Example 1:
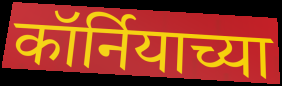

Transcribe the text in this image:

कॉर्नियाच्या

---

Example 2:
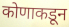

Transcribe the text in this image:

कोणाकडून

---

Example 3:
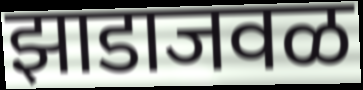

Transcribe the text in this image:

झाडाजवळ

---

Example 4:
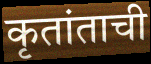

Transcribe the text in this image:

कृतांताची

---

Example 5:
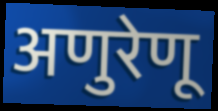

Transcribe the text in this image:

अणुरेणू